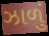
ઝાળું